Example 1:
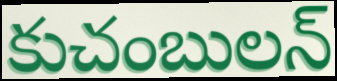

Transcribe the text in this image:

కుచంబులన్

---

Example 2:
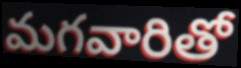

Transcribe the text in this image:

మగవారితో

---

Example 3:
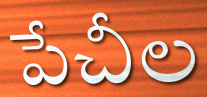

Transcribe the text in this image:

పేచీల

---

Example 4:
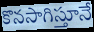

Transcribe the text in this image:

కొనసాగిస్తూనే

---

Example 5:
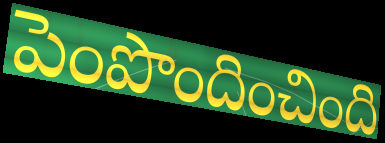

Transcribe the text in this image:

పెంపొందించింది